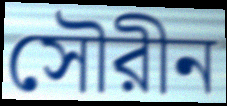
সৌরীন